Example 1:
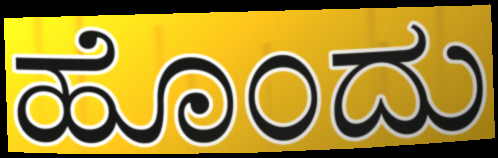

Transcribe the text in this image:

ಹೊಂದು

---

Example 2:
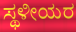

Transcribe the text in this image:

ಸ್ಥಳೀಯರ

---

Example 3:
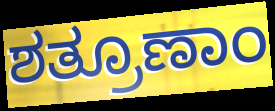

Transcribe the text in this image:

ಶತ್ರೂಣಾಂ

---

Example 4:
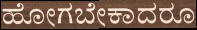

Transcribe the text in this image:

ಹೋಗಬೇಕಾದರೂ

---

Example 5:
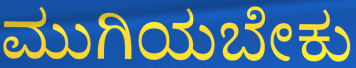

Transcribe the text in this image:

ಮುಗಿಯಬೇಕು